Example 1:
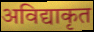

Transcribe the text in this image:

अविद्याकृत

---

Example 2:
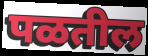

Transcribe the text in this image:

पळतील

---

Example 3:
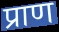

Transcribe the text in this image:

प्राण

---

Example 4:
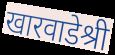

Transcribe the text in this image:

खारवाडेश्री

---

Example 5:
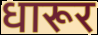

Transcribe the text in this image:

धारूर